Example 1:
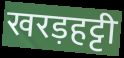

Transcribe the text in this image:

खरड़हट्टी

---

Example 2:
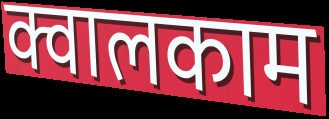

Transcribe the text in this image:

क्वालकाम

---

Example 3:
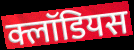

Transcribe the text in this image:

क्लॉडियस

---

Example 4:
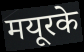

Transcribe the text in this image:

मयूरके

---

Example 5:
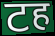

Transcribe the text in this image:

टह